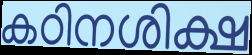
കഠിനശിക്ഷ